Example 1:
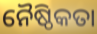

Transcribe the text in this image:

ନୈଷ୍ଠିକତା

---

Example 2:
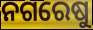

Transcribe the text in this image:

ନଗରେଷୁ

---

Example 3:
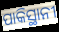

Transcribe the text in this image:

ପାକିସ୍ଥାନୀ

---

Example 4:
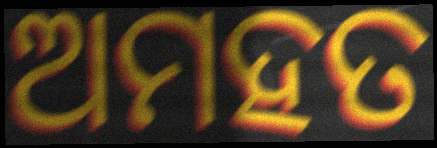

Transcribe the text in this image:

ଅମହତ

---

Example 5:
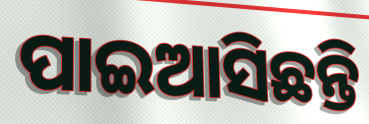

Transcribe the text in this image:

ପାଇଆସିଛନ୍ତି